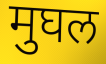
मुघल